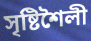
সৃষ্টিশৈলী